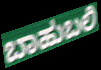
ಬಾಹುಬಲಿ